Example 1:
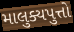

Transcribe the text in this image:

માલુક્યપુત્તો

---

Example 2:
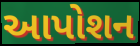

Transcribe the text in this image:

આપોશન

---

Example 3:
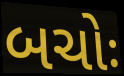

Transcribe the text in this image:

બચોઃ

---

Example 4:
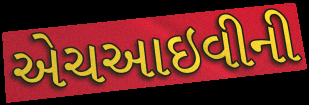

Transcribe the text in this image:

એચઆઇવીની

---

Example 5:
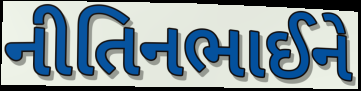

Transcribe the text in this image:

નીતિનભાઈને